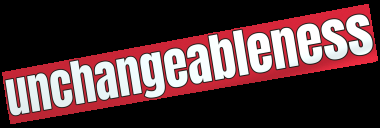
unchangeableness